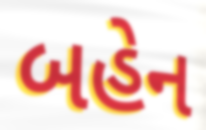
બહેન